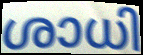
ശാധി